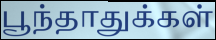
பூந்தாதுக்கள்